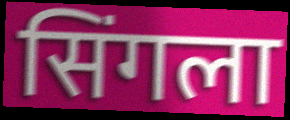
सिंगला